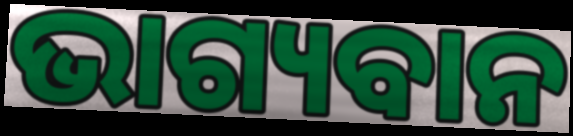
ଭାଗ୍ୟବାନ